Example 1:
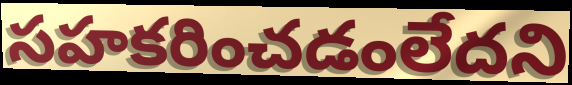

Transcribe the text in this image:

సహకరించడంలేదని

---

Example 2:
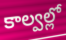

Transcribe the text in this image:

కాల్వల్లో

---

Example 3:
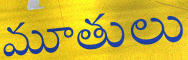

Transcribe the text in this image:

మూతులు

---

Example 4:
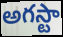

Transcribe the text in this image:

అగస్టా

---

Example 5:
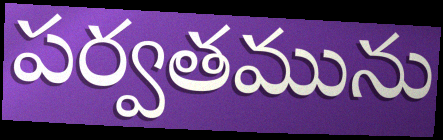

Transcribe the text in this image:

పర్వతమును